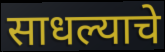
साधल्याचे